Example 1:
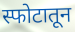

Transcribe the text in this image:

स्फोटातून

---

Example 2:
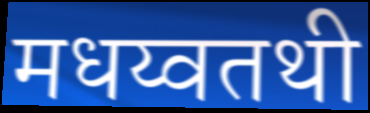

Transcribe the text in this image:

मधय्वतथी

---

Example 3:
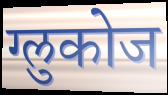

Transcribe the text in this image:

ग्लुकोज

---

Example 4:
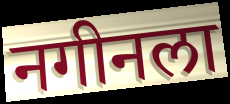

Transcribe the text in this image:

नगीनला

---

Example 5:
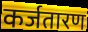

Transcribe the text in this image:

कर्जतारण